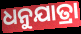
ଧନୁଯାତ୍ରା